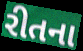
રીતના